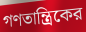
গণতান্ত্রিকের